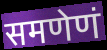
समणेणं